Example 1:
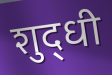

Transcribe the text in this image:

शुद्धी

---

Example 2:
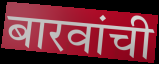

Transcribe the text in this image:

बारवांची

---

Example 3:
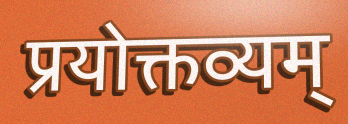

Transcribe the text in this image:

प्रयोक्तव्यम्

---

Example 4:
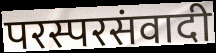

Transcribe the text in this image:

परस्परसंवादी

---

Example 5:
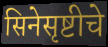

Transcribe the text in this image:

सिनेसृष्टीचे